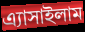
এ্যাসাইলাম